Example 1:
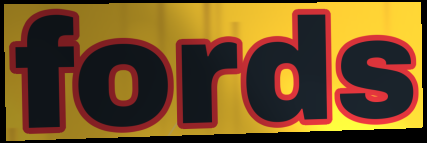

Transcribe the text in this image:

fords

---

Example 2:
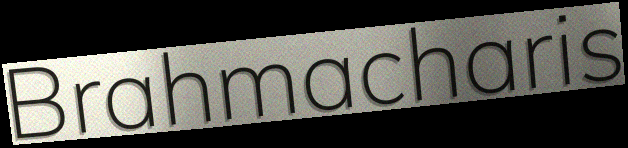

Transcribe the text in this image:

Brahmacharis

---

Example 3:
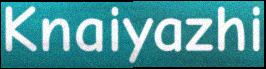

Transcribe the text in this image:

Knaiyazhi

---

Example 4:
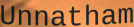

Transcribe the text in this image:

Unnatham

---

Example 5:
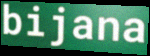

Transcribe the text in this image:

bijana